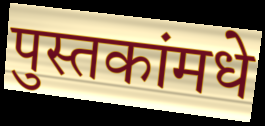
पुस्तकांमधे